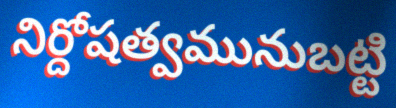
నిర్దోషత్వమునుబట్టి